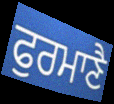
ਫੁਰਮਾਣੈ